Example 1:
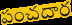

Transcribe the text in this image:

పంచదార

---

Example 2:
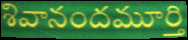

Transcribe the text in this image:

శివానందమూర్తి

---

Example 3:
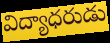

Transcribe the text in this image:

విద్యాధరుడు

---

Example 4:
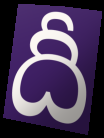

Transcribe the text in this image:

దీ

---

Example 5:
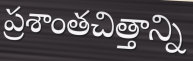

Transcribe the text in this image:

ప్రశాంతచిత్తాన్ని